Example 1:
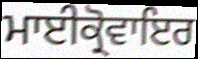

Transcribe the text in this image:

ਮਾਈਕ੍ਰੋਵਾਇਰ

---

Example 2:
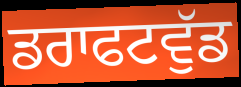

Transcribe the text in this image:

ਡਰਾਫਟਵੁੱਡ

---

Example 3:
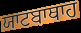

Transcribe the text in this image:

ਯਾਟਬਾਥਾਹ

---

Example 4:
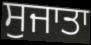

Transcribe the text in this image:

ਸੁਜਾਤਾ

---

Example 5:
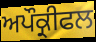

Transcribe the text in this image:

ਅਪੌਕ੍ਰੀਫਲ